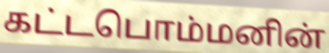
கட்டபொம்மனின்